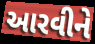
આરવીને